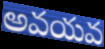
అవయవ